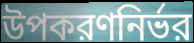
উপকরণনির্ভর